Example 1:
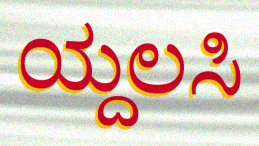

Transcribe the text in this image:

ಯ್ದಲಸಿ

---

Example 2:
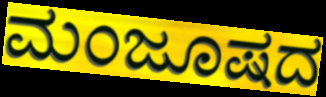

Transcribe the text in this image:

ಮಂಜೂಷದ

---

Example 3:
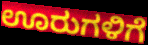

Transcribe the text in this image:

ಊರುಗಳಿಗೆ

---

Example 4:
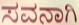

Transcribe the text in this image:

ಸವನಾಗಿ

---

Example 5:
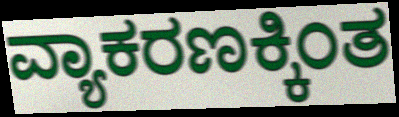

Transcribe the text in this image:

ವ್ಯಾಕರಣಕ್ಕಿಂತ